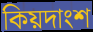
কিয়দাংশ